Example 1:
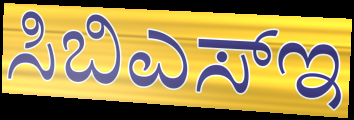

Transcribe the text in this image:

ಸಿಬಿಎಸ್ಇ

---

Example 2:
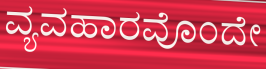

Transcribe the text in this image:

ವ್ಯವಹಾರವೊಂದೇ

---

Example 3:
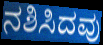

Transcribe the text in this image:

ನಶಿಸಿದವು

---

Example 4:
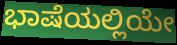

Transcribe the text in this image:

ಭಾಷೆಯಲ್ಲಿಯೇ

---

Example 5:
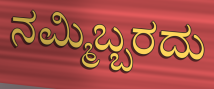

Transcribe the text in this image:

ನಮ್ಮಿಬ್ಬರದು